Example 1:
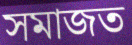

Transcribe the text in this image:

সমাজত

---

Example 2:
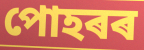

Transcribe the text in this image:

পোহৰৰ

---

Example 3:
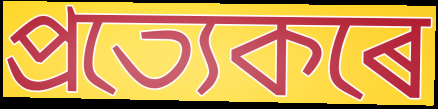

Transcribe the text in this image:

প্ৰত্যেকৰে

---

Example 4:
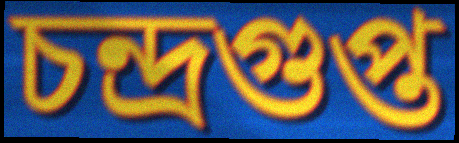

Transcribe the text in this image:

চন্দ্ৰগুপ্ত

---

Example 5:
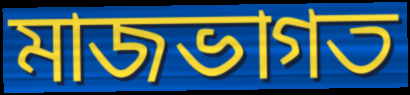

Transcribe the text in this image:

মাজভাগত